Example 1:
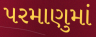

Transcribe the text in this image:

પરમાણુમાં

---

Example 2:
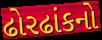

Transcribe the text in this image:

ઢોરઢાંકનો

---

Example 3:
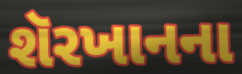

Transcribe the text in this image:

શૅરખાનના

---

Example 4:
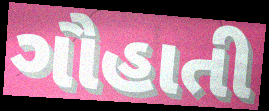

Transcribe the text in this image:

ગૌહાતી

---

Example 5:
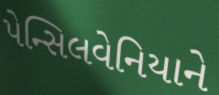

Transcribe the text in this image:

પેન્સિલવેનિયાને